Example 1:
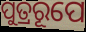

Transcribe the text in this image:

ପୁତ୍ରରୂପେ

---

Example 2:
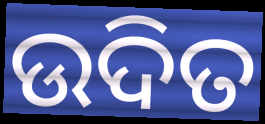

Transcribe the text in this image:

ଉଦିତ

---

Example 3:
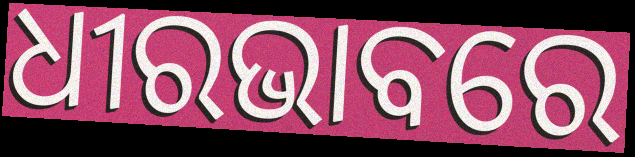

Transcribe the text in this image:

ଧୀରଭାବରେ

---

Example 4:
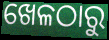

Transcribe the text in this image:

ଖେଳଠାରୁ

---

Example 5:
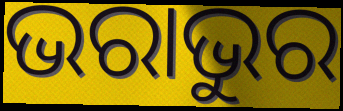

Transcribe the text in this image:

ଭରାଭୁର